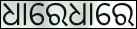
ଧାରେଧାରେ